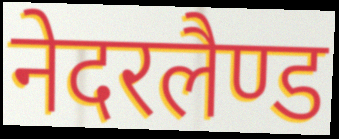
नेदरलैण्ड